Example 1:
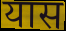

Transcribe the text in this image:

यास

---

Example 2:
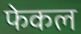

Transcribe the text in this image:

फेकल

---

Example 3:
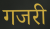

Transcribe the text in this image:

गजरी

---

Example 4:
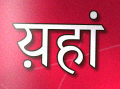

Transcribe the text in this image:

य़हां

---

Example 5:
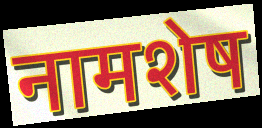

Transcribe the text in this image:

नामशेष